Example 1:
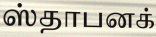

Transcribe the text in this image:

ஸ்தாபனக்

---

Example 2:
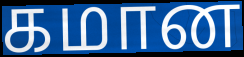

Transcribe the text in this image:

கமான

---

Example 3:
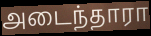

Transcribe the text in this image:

அடைந்தாரா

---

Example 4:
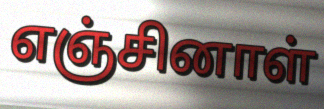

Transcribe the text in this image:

எஞ்சினாள்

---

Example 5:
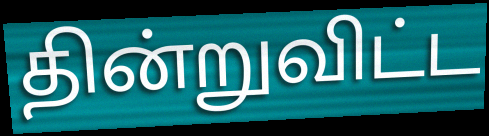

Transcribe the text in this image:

தின்றுவிட்ட